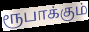
ரூபாக்கும்